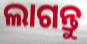
ଲାଗନ୍ତୁ